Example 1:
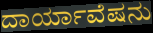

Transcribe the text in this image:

ದಾರ್ಯಾವೆಷನು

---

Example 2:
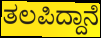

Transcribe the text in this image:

ತಲಪಿದ್ದಾನೆ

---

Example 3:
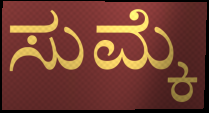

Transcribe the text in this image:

ಸುಮ್ಕೆ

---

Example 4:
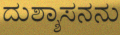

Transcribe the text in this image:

ದುಶ್ಶಾಸನನು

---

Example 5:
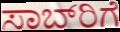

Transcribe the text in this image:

ಸಾಬ್‌ರಿಗೆ